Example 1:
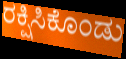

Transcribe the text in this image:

ರಕ್ಷಿಸಿಕೊಂಡು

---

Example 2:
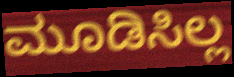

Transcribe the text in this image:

ಮೂಡಿಸಿಲ್ಲ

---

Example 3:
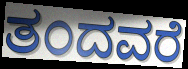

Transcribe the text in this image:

ತಂದವರೆ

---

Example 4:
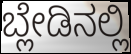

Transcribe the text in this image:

ಬ್ಲೇಡಿನಲ್ಲಿ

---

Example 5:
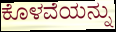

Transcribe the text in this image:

ಕೊಳವೆಯನ್ನು